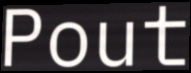
Pout